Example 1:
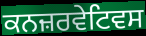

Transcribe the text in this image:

ਕਨਜ਼ਰਵੇਟਿਵਸ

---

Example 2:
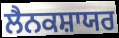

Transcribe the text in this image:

ਲੈਨਕਸ਼ਾਯਰ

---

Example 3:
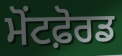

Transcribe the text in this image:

ਮੋਂਟਫ਼ੋਰਡ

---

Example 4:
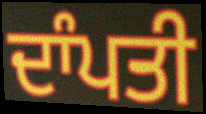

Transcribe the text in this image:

ਦਾੰਪਤੀ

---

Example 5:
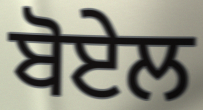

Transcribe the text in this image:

ਬੋਏਲ